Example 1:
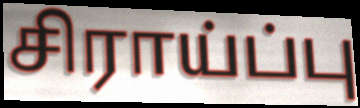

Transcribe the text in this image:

சிராய்ப்பு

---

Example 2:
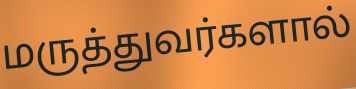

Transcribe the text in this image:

மருத்துவர்களால்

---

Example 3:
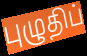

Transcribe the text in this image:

புழுதிப்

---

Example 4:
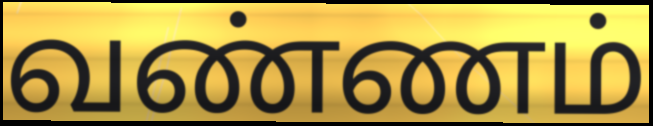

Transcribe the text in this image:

வண்ணம்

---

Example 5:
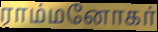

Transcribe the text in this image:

ராம்மனோகர்